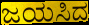
ಜಯಸಿದ